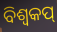
ବିଶ୍ବକପ୍